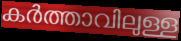
കർത്താവിലുള്ള